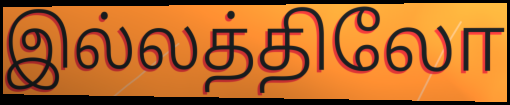
இல்லத்திலோ